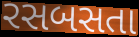
રસબસતા